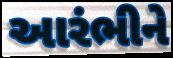
આરંભીને